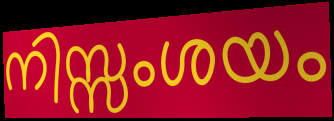
നിസ്സംശയം